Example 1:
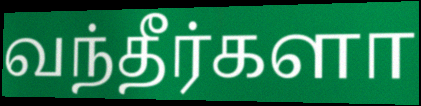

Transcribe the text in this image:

வந்தீர்களா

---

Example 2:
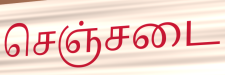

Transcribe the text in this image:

செஞ்சடை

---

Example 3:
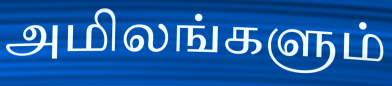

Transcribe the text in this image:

அமிலங்களும்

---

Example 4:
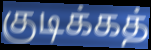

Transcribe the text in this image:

குடிக்கத்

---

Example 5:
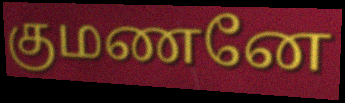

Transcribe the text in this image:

குமணனே